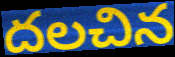
దలచిన